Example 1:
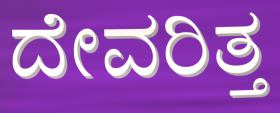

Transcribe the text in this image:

ದೇವರಿತ್ತ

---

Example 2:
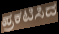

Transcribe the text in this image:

ಪ್ರಕಟಿಸಿದ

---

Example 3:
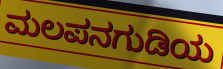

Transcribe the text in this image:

ಮಲಪನಗುಡಿಯ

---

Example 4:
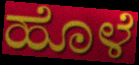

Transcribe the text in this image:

ಹೊಳೆ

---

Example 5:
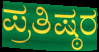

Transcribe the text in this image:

ಪ್ರತಿಷ್ಠರ